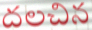
దలచిన